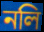
নলি